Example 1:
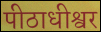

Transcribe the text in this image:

पीठाधीश्वर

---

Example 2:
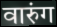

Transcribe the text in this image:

वारुंग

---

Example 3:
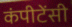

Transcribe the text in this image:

कंपीटेंसी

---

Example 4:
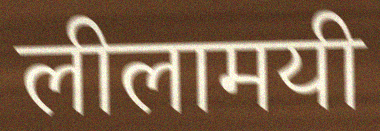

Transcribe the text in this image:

लीलामयी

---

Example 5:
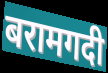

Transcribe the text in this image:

बरामगदी